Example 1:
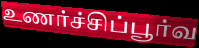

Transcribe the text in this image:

உணர்ச்சிப்பூர்வ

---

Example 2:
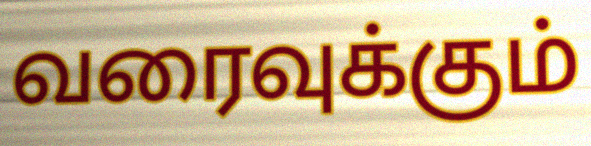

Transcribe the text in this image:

வரைவுக்கும்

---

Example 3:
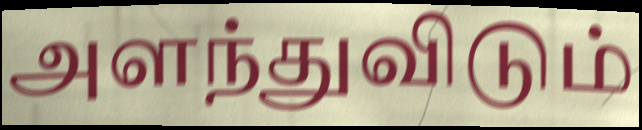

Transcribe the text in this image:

அளந்துவிடும்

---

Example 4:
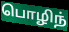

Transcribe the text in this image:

பொழிந்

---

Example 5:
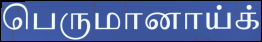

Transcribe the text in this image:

பெருமானாய்க்